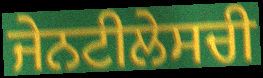
ਜੇਨਟੀਲੇਸਚੀ